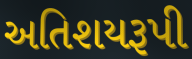
અતિશયરૂપી